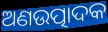
ଅଣଉତ୍ପାଦକ